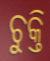
ଚୁକ୍ତି